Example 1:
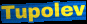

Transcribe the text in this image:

Tupolev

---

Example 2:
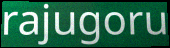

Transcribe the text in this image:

rajugoru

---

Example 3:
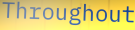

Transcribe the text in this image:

Throughout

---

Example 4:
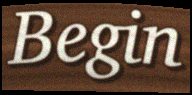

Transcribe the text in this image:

Begin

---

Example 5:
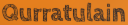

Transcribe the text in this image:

Qurratulain